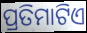
ପ୍ରତିମାଟିଏ